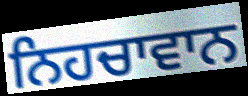
ਨਿਹਚਾਵਾਨ